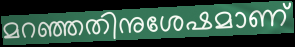
മറഞ്ഞതിനുശേഷമാണ്